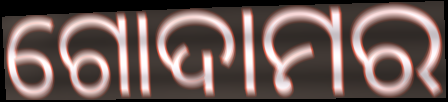
ଗୋଦାମର